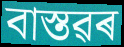
বাস্তৱৰ